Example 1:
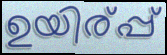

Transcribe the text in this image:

ഉയിര്പ്പ്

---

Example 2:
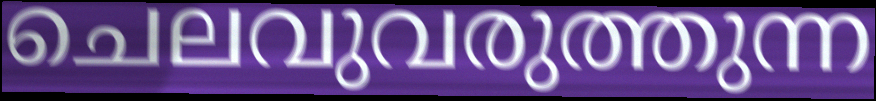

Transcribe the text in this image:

ചെലവുവരുത്തുന്ന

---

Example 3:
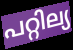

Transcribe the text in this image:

പറ്റില്യ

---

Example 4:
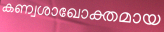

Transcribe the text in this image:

കണ്വശാഖോക്തമായ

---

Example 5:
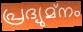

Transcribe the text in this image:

പ്രദ്യുമ്നം